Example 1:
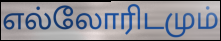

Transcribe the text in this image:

எல்லோரிடமும்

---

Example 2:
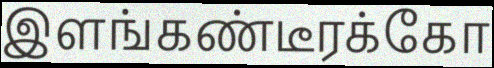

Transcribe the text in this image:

இளங்கண்டீரக்கோ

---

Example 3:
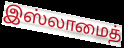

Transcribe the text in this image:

இஸ்லாமைத்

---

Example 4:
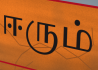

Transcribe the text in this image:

ஈரும்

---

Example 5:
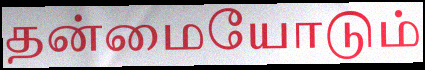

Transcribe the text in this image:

தன்மையோடும்